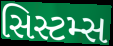
સિસ્ટમ્સ